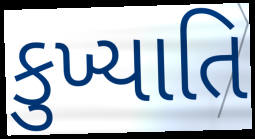
કુખ્યાતિ